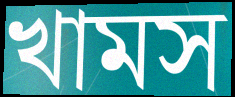
খামস